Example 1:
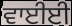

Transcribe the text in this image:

ਵਾਈਈ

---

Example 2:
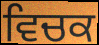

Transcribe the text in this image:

ਵਿਚਕ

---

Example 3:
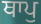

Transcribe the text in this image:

ਥਾਪੁ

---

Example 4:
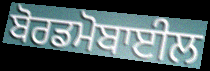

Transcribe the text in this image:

ਬੋਰਡਮੋਬਾਈਲ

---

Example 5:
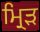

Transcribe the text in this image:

ਮ੍ਰਿੜ